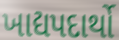
ખાદ્યપદાર્થો